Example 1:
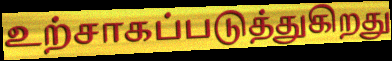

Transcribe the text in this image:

உற்சாகப்படுத்துகிறது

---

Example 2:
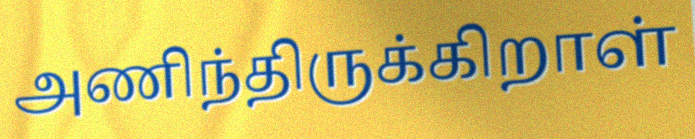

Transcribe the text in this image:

அணிந்திருக்கிறாள்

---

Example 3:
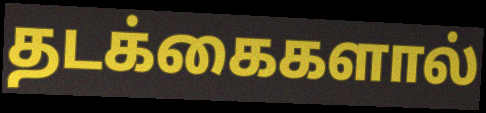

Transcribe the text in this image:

தடக்கைகளால்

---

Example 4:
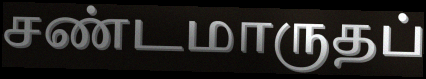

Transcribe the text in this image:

சண்டமாருதப்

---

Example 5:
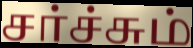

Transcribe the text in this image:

சர்ச்சும்